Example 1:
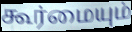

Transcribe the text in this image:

கூர்மையும்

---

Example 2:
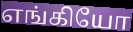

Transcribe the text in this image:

எங்கியோ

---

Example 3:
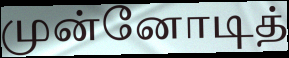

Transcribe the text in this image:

முன்னோடித்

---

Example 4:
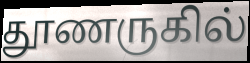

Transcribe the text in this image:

தூணருகில்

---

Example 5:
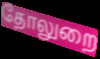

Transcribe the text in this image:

தோலுறை